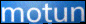
motun